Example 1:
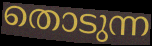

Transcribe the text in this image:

തൊടുന്ന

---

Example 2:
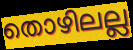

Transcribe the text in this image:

തൊഴിലല്ല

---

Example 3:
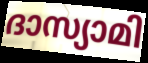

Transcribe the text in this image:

ദാസ്യാമി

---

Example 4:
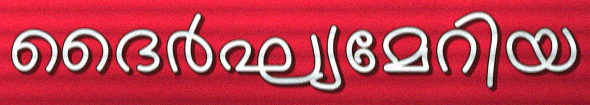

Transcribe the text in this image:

ദൈർഘ്യമേറിയ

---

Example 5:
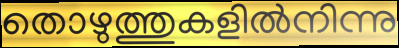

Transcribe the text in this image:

തൊഴുത്തുകളിൽനിന്നു